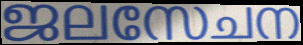
ജലസേചന